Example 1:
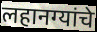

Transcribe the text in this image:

लहानग्यांचे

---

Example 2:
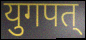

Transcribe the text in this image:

युगपत्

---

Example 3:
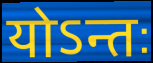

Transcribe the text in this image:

योऽन्तः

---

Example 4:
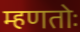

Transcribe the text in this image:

म्हणतोः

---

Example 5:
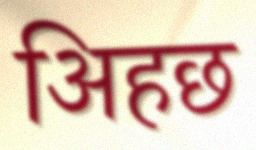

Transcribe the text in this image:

अिहछ